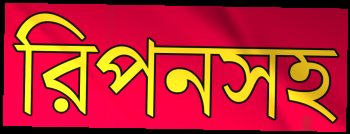
রিপনসহ